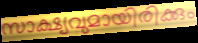
സാക്ഷ്യവുമായിരിക്കും